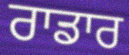
ਰਾਡਾਰ